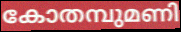
കോതമ്പുമണി